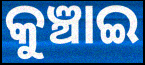
କୁଞ୍ଚାଇ